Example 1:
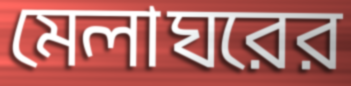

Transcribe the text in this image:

মেলাঘরের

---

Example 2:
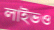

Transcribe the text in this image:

লাইভও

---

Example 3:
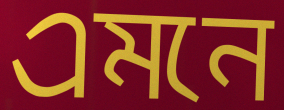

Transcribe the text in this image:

এমনে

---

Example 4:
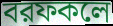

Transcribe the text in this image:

বরফকলে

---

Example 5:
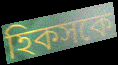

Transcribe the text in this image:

হিকসকে